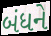
બંધને